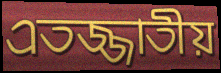
এতজ্জাতীয়